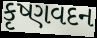
કૃષ્ણવદન